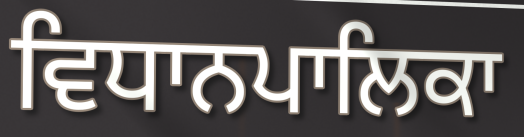
ਵਿਧਾਨਪਾਲਿਕਾ